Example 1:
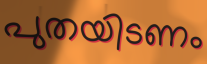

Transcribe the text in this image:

പുതയിടണം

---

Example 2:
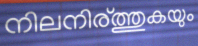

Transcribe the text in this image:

നിലനിര്ത്തുകയും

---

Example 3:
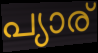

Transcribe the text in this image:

പ്യാര്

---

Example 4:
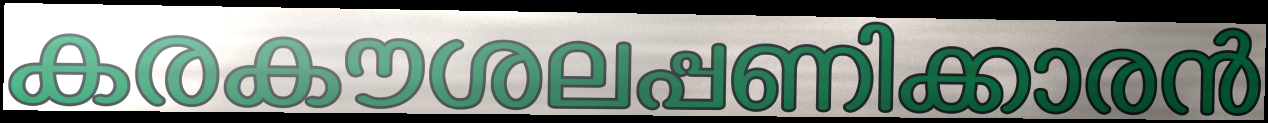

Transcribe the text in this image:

കരകൗശലപ്പണിക്കാരൻ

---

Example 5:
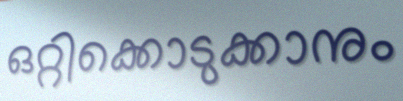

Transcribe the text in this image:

ഒറ്റിക്കൊടുക്കാനും